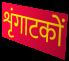
शृंगाटकों